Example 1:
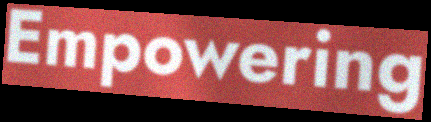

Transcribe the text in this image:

Empowering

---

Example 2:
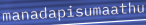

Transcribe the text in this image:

manadapisumaathu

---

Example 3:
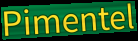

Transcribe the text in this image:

Pimentel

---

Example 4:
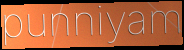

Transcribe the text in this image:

punniyam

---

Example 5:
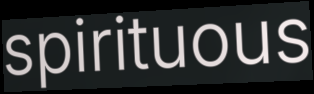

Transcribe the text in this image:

spirituous